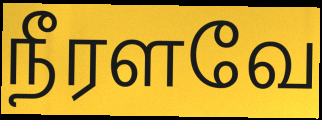
நீரளவே